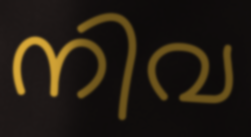
നിവ